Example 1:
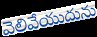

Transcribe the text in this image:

వెలివేయుదును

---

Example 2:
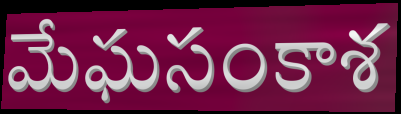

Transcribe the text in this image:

మేఘసంకాశ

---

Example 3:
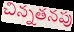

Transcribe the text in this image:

చిన్నతనపు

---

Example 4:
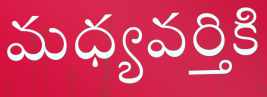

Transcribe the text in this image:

మధ్యవర్తికి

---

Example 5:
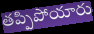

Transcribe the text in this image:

తప్పిపోయారు